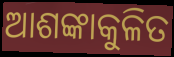
ଆଶଙ୍କାକୁଳିତ